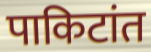
पाकिटांत